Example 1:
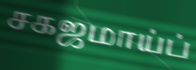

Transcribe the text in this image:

சகஜமாய்ப்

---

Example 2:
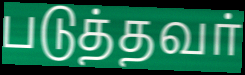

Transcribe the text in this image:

படுத்தவர்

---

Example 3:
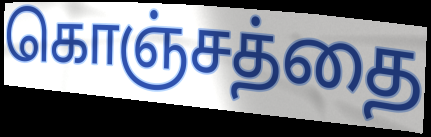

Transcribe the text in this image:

கொஞ்சத்தை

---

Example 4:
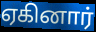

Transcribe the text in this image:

ஏகினார்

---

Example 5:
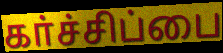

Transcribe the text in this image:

கர்ச்சிப்பை